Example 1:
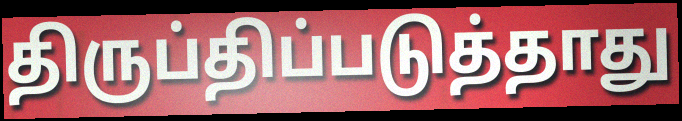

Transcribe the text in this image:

திருப்திப்படுத்தாது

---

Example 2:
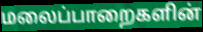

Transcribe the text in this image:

மலைப்பாறைகளின்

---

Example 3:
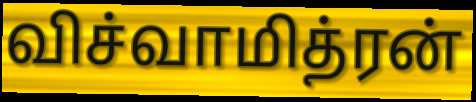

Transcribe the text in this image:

விச்வாமித்ரன்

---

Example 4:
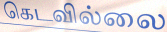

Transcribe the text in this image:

கெடவில்லை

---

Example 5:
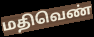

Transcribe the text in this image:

மதிவெண்